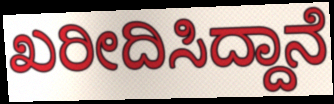
ಖರೀದಿಸಿದ್ದಾನೆ